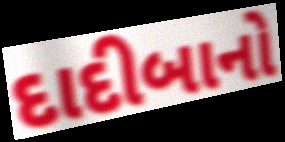
દાદીબાનો